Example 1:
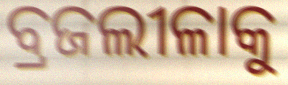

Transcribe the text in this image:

ବ୍ରଜଲୀଳାକୁ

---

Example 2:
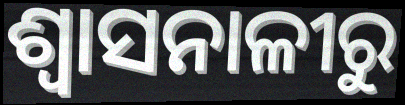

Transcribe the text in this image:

ଶ୍ୱାସନାଳୀରୁ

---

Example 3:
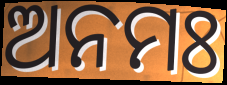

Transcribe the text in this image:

ଅନମଃ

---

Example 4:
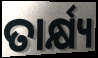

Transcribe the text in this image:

ତାର୍କ୍ଷ୍ୟ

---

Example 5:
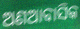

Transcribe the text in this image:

ଅଣଆବାସିକ